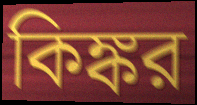
কিঙ্কর